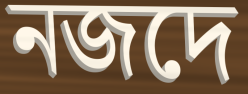
নজদে